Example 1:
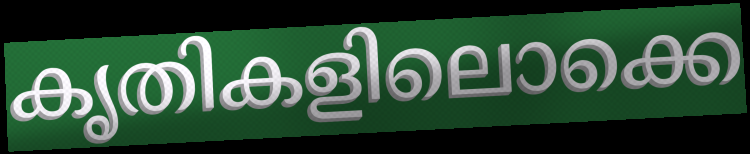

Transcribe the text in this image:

കൃതികളിലൊക്കെ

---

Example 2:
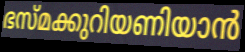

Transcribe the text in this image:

ഭസ്മക്കുറിയണിയാൻ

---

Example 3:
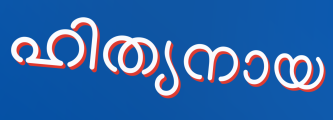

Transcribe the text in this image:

ഹിത്യനായ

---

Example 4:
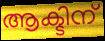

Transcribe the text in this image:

ആക്ടിന്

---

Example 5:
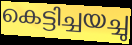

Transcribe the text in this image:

കെട്ടിച്ചയച്ചു